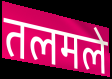
तलमले